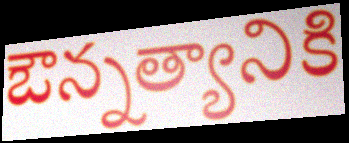
ఔన్నత్యానికి